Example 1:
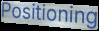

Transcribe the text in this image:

Positioning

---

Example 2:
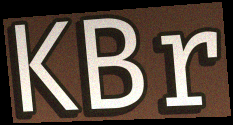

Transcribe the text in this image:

KBr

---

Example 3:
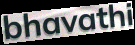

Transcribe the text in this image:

bhavathi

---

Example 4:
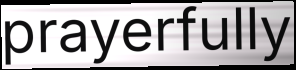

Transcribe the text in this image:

prayerfully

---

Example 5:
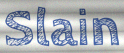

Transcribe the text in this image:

Slain